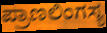
ಪ್ರಾಣಲಿಂಗಸ್ಯ